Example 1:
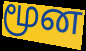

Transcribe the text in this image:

மூன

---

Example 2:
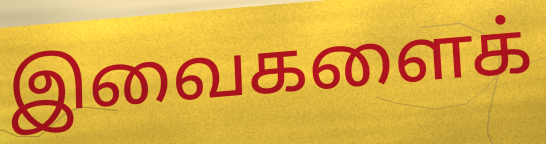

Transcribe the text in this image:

இவைகளைக்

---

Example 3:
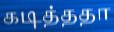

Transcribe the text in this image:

கடித்ததா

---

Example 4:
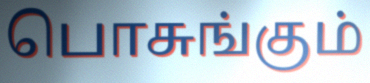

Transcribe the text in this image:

பொசுங்கும்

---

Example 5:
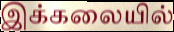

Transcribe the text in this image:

இக்கலையில்